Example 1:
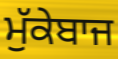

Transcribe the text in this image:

ਮੁੱਕੇਬਾਜ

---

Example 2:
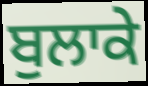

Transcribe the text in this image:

ਬੁਲਾਕੇ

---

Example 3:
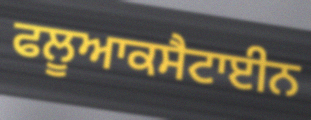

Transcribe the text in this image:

ਫਲੂਆਕਸੈਟਾਈਨ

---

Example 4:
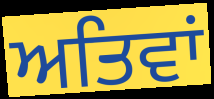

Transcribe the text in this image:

ਅਤਿਵਾਂ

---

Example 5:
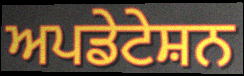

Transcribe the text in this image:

ਅਪਡੇਟੇਸ਼ਨ